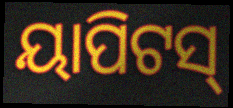
ୟାପିଟସ୍